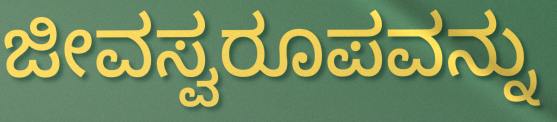
ಜೀವಸ್ವರೂಪವನ್ನು